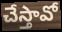
చేస్తావో